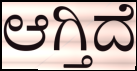
ಆಗ್ತಿದೆ